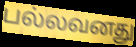
பல்லவனது